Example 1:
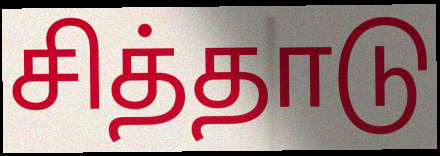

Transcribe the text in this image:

சித்தாடு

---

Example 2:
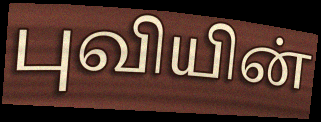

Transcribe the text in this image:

புவியின்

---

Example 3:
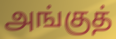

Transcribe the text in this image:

அங்குத்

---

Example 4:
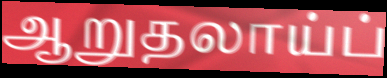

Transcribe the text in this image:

ஆறுதலாய்ப்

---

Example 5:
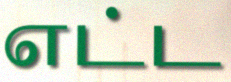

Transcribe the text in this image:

எட்ட